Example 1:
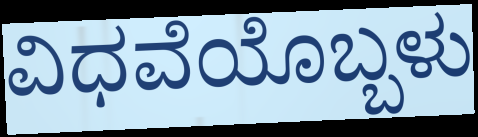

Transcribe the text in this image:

ವಿಧವೆಯೊಬ್ಬಳು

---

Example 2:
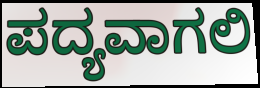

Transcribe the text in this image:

ಪದ್ಯವಾಗಲಿ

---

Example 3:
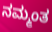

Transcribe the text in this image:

ನಮ್ಮಂತ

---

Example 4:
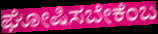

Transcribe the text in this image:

ಘೋಷಿಸಬೇಕೆಂಬ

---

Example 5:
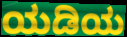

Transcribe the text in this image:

ಯಡಿಯ